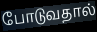
போடுவதால்